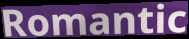
Romantic